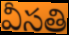
వీసతి